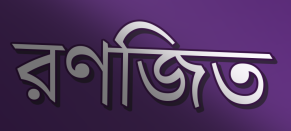
রণজিত